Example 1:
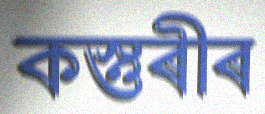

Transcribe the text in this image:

কস্তুৰীৰ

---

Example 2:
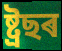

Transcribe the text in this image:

ষ্ট্ৰছৰ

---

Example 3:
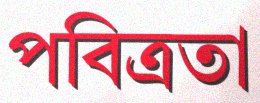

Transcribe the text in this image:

পবিত্ৰতা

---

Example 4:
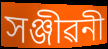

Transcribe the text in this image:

সঞ্জীৱনী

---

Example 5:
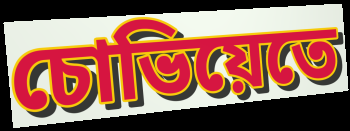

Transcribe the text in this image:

চোভিয়েতে